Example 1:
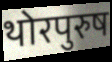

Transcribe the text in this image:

थोरपुरुष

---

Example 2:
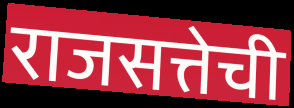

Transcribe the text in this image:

राजसत्तेची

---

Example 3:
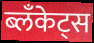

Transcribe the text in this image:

ब्लॅंकेट्स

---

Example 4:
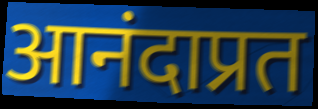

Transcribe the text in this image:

आनंदाप्रत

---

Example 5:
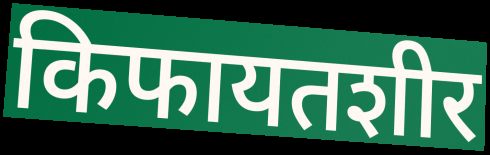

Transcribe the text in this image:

किफायतशीर